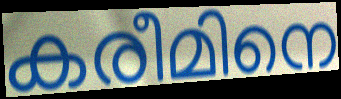
കരീമിനെ